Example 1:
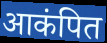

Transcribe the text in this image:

आकंपित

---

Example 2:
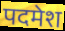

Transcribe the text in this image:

पदमेश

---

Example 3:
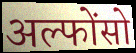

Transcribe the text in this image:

अल्फोंसो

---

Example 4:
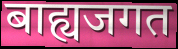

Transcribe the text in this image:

बाह्यजगत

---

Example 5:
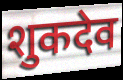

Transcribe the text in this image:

शुकदेव